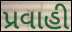
પ્રવાહી